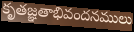
కృతజ్ఞతాభివందనములు